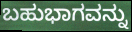
ಬಹುಭಾಗವನ್ನು